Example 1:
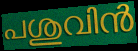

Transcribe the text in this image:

പശുവിൻ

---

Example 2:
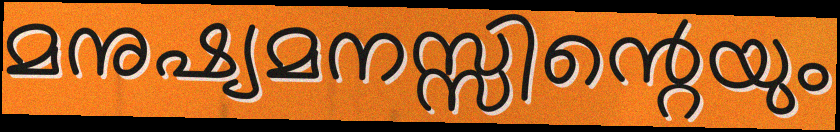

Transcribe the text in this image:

മനുഷ്യമനസ്സിന്റെയും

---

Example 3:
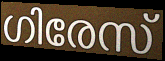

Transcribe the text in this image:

ഗിരേസ്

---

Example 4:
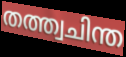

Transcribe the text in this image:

തത്ത്വചിന്ത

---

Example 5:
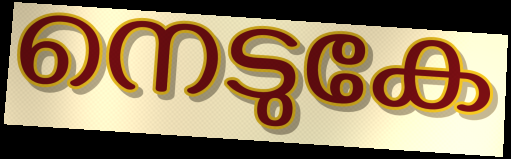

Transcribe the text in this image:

നെടുകേ